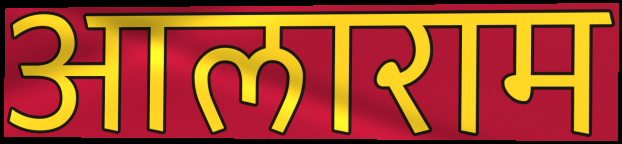
आलाराम